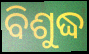
ବିଶୁଦ୍ଧ